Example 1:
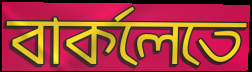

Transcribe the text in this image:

বার্কলেতে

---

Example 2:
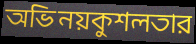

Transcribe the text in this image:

অভিনয়কুশলতার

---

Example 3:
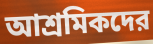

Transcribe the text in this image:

আশ্রমিকদের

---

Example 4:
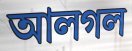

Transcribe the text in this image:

আলগল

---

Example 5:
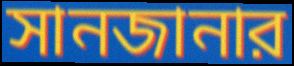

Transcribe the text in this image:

সানজানার